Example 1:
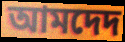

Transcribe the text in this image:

আমদেদ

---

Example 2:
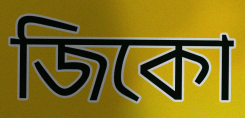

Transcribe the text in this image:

জিকো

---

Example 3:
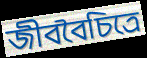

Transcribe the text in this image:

জীববৈচিত্রে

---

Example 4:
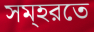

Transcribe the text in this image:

সম্হরতে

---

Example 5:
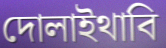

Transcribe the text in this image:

দোলাইথাবি